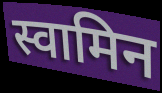
स्वामिन